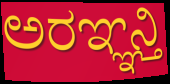
ಅರಞ್ಞನ್ತಿ